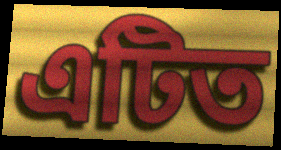
এটিত